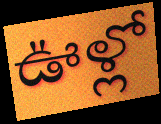
ఊళ్లో